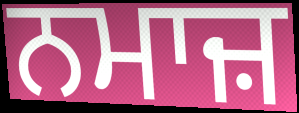
ਨਮਾਜ਼